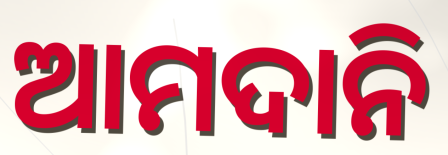
ଆମଦାନି